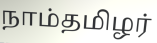
நாம்தமிழர்